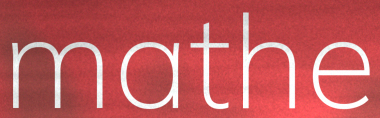
mathe